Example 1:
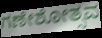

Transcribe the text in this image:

ಗಣೇಶೋತ್ಸವ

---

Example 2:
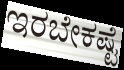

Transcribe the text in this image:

ಇರಬೇಕಷ್ಟೆ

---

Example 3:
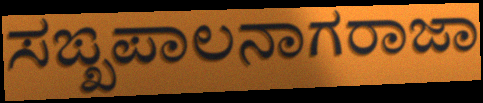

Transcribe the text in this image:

ಸಙ್ಖಪಾಲನಾಗರಾಜಾ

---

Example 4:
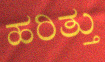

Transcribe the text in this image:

ಹರಿತ್ತು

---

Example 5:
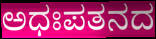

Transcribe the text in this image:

ಅಧಃಪತನದ